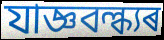
যাজ্ঞবল্ক্যৰ